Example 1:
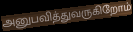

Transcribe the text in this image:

அனுபவித்துவருகிறோம்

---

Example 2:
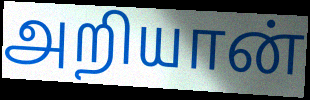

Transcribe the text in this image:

அறியான்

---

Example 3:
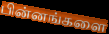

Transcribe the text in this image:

பின்னங்களை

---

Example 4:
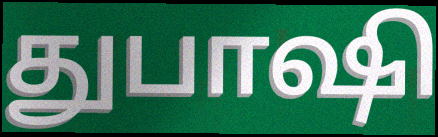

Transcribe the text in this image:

துபாஷி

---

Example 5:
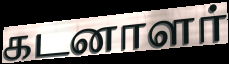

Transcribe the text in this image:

கடனாளர்